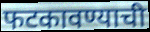
फटकावण्याची